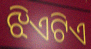
ଝିଏଟିଏ